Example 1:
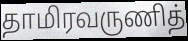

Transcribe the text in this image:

தாமிரவருணித்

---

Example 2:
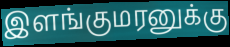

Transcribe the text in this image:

இளங்குமரனுக்கு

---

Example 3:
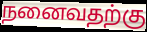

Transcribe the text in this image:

நனைவதற்கு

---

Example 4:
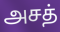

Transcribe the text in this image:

அசத்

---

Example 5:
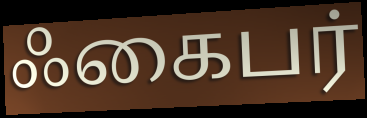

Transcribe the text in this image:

ஃகைபர்